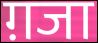
ग़जा